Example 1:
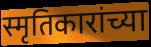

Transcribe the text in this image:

स्मृतिकारांच्या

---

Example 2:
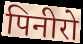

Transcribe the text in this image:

पिनीरो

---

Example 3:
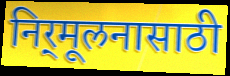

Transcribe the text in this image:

निर्मूलनासाठी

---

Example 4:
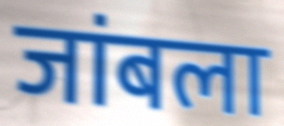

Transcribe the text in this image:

जांबला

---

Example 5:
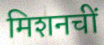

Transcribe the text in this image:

मिशनचीं